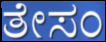
ತೇಸಂ